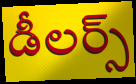
డీలర్స్